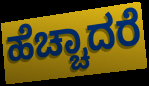
ಹೆಚ್ಚಾದರೆ